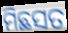
ମିଛସତ